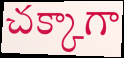
చక్కాగా